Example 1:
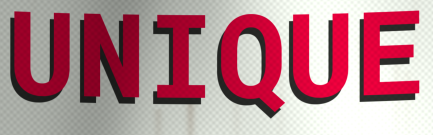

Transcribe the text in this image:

UNIQUE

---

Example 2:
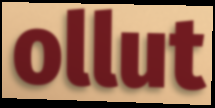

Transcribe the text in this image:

ollut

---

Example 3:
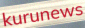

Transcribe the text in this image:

kurunews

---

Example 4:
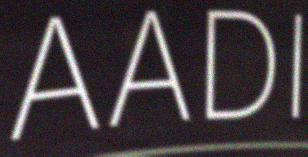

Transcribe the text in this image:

AADI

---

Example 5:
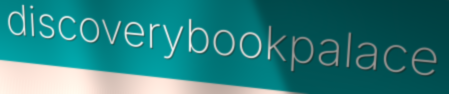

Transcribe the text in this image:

discoverybookpalace